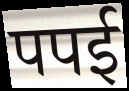
पपई